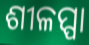
ଶୀଳପ୍ପା